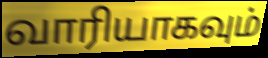
வாரியாகவும்